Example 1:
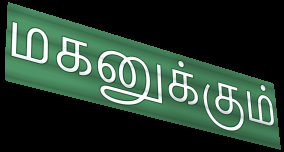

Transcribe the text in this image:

மகனுக்கும்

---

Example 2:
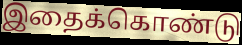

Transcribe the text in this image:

இதைக்கொண்டு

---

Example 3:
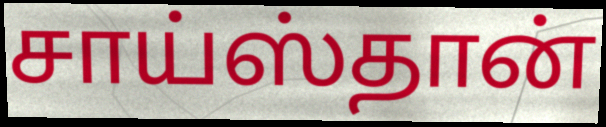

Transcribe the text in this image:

சாய்ஸ்தான்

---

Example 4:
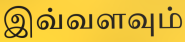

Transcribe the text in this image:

இவ்வளவும்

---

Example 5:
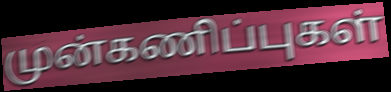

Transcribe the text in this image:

முன்கணிப்புகள்